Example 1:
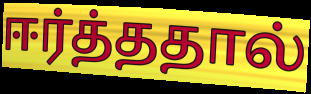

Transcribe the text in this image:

ஈர்த்ததால்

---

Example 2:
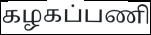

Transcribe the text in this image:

கழகப்பணி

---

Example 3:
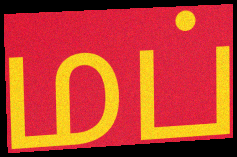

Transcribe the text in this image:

மப்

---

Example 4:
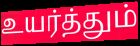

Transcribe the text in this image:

உயர்த்தும்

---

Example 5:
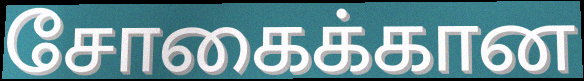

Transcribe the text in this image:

சோகைக்கான